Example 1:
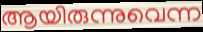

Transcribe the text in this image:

ആയിരുന്നുവെന്ന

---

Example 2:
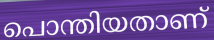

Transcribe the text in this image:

പൊന്തിയതാണ്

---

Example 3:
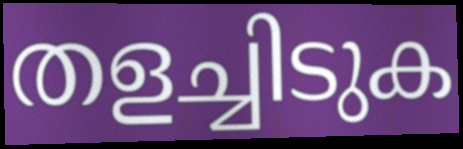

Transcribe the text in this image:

തളച്ചിടുക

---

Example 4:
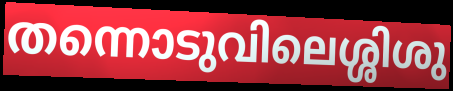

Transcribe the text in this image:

തന്നൊടുവിലെശ്ശിശു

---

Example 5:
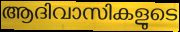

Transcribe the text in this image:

ആദിവാസികളുടെ